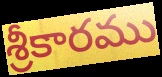
శ్రీకారము